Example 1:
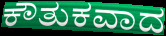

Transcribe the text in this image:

ಕೌತುಕವಾದ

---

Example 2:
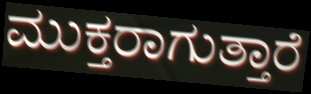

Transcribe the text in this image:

ಮುಕ್ತರಾಗುತ್ತಾರೆ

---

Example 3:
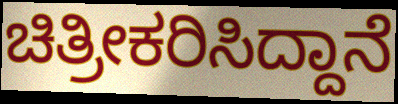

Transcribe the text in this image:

ಚಿತ್ರೀಕರಿಸಿದ್ದಾನೆ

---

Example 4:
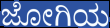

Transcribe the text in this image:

ಜೋಗಿಯ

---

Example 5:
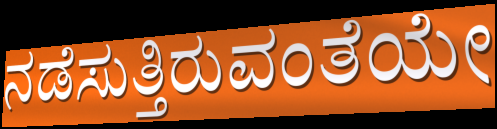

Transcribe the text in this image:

ನಡೆಸುತ್ತಿರುವಂತೆಯೇ